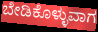
ಬೇಡಿಕೊಳ್ಳುವಾಗ